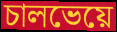
চালভেয়ে